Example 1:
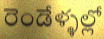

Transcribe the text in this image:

రెండేళ్ళల్లో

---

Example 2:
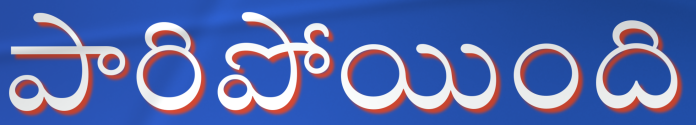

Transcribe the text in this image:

పారిపోయింది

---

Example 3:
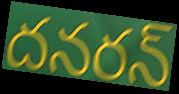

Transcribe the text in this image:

దనరన్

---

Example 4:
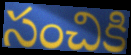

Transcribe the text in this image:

సంచికి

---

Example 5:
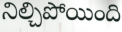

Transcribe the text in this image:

నిల్చిపోయింది